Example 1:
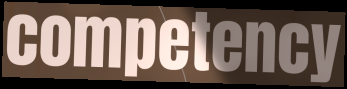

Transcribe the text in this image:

competency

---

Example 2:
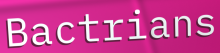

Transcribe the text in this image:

Bactrians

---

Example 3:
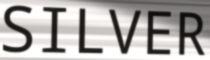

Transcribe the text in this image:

SILVER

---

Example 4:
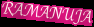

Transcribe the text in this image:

RAMANUJA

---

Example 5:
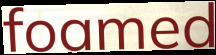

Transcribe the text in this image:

foamed